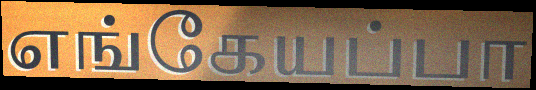
எங்கேயப்பா